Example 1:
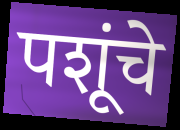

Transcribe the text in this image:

पशूंचे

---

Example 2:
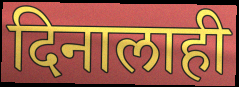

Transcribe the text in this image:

दिनालाही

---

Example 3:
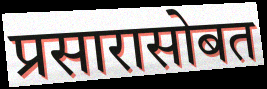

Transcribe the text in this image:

प्रसारासोबत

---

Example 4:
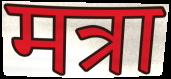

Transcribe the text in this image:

मत्रा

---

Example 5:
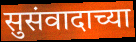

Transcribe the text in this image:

सुसंवादाच्या